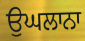
ਉਘਲਾਨਾ